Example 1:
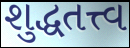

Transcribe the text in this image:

શુદ્ધતત્ત્વ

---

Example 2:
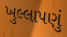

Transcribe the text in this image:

ખુલ્લાપણું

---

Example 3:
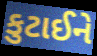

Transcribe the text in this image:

કુટાઈને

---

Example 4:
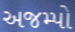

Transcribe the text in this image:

અજમ્પો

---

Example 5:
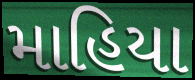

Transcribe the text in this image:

માહિયા